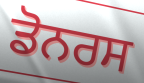
ਡੋਨਰਸ